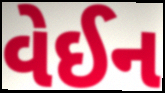
વેઈન